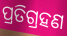
ପ୍ରତିଗ୍ରହଣ